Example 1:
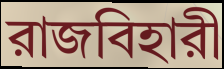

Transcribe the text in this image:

রাজবিহারী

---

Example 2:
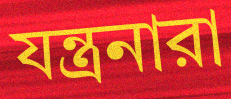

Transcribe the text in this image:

যন্ত্রনারা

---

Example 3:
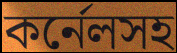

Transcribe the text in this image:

কর্নেলসহ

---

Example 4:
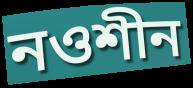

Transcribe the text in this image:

নওশীন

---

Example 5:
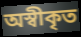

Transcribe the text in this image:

অস্বীকৃত